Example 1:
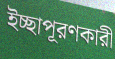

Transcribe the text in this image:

ইচ্ছাপূরণকারী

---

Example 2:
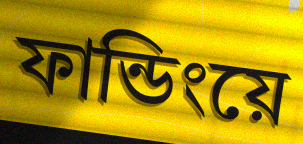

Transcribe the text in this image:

ফান্ডিংয়ে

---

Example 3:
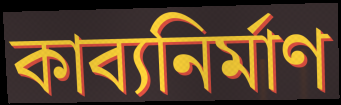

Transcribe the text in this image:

কাব্যনির্মাণ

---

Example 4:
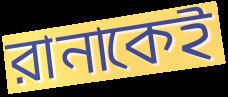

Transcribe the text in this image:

রানাকেই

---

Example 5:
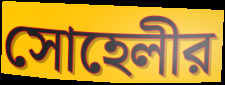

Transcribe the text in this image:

সোহেলীর